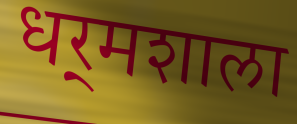
धर्मशाला